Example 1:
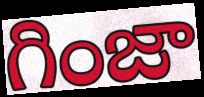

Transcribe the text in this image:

గింజా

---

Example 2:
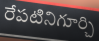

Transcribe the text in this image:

రేపటినిగూర్చి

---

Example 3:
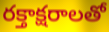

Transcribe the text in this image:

రక్తాక్షరాలతో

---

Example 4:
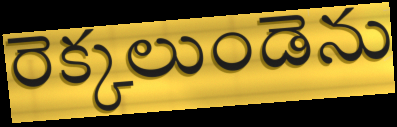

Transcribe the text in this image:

రెక్కలుండెను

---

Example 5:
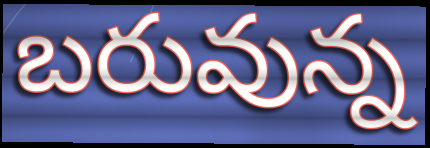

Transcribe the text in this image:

బరువున్న